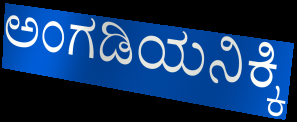
ಅಂಗಡಿಯನಿಕ್ಕಿ